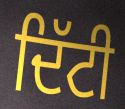
ਦਿੱਟੀ